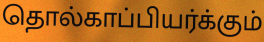
தொல்காப்பியர்க்கும்